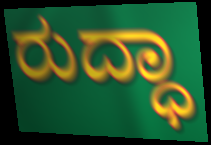
ರುದ್ಧಾ